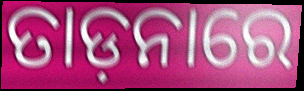
ତାଡ଼ନାରେ